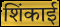
शिंकाई